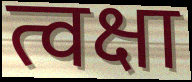
त्वक्षा